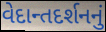
વેદાન્તદર્શનનું